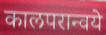
कालपरान्वये